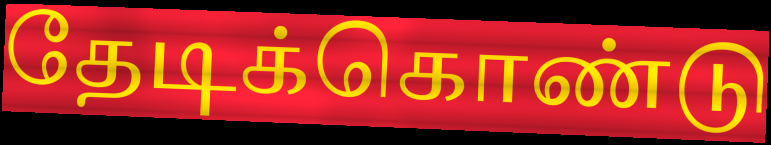
தேடிக்கொண்டு